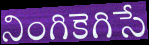
నింగికెగిసే